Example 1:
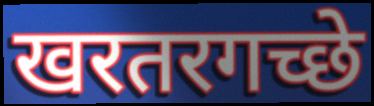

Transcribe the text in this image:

खरतरगच्छे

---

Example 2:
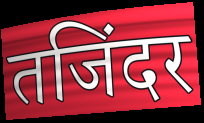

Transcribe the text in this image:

तजिंदर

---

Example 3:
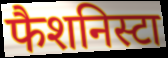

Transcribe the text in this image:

फैशनिस्टा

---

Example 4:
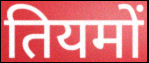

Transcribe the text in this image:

तियमों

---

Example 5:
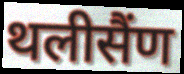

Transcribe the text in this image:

थलीसैंण